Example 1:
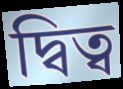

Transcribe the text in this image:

দ্বিত্ব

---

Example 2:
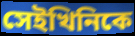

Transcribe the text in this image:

সেইখিনিকে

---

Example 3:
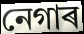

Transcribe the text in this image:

নেগাৰ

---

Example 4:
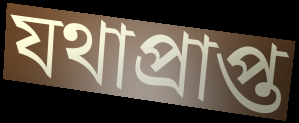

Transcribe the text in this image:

যথাপ্ৰাপ্ত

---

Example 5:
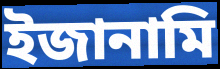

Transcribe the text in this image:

ইজানামি